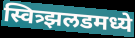
स्वित्र्झलडमध्ये